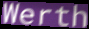
Werth